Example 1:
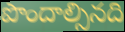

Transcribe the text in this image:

పొందాల్సినది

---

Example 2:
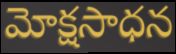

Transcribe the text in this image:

మోక్షసాధన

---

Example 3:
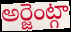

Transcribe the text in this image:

అర్జెంట్గా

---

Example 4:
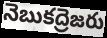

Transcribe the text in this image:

నెబుకద్రెజరు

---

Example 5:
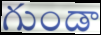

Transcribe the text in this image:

గుండా